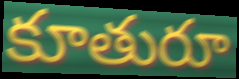
కూతురూ